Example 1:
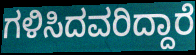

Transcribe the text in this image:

ಗಳಿಸಿದವರಿದ್ದಾರೆ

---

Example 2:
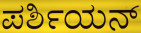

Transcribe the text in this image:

ಪರ್ಶಿಯನ್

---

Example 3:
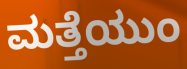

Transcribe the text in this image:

ಮತ್ತೆಯುಂ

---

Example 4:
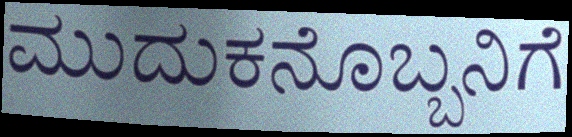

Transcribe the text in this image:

ಮುದುಕನೊಬ್ಬನಿಗೆ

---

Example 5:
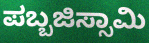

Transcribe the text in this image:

ಪಬ್ಬಜಿಸ್ಸಾಮಿ